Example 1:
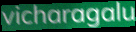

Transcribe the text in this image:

vicharagalu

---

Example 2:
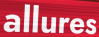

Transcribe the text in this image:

allures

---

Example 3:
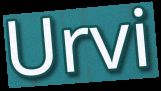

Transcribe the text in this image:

Urvi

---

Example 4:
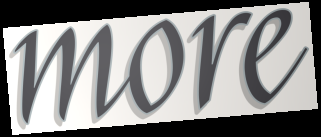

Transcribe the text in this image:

more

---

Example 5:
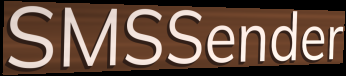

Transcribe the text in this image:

SMSSender